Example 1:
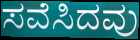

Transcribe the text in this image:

ಸವೆಸಿದವು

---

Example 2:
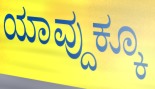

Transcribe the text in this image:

ಯಾವ್ದುಕ್ಕೂ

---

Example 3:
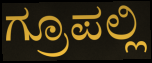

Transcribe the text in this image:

ಗ್ರೂಪಲ್ಲಿ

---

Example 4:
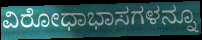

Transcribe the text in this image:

ವಿರೋಧಾಭಾಸಗಳನ್ನೂ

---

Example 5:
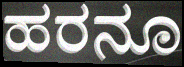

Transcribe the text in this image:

ಹರನೂ